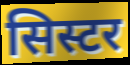
सिस्टर